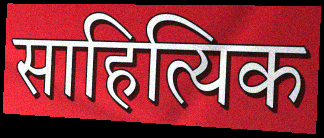
साहित्यिक